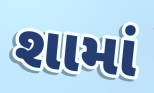
શામાં